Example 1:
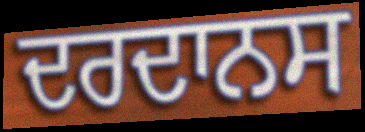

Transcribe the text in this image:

ਦਰਦਾਨਸ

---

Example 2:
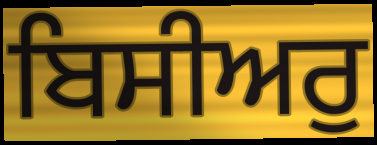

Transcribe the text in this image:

ਬਿਸੀਅਰੁ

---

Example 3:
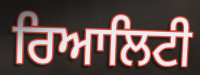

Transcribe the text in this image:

ਰਿਆਲਿਟੀ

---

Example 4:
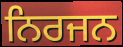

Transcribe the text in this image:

ਨਿਰਜਨ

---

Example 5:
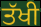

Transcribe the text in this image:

ਤੱਖੀ